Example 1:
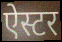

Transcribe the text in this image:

ऐस्टर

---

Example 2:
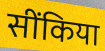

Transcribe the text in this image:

सींकिया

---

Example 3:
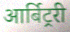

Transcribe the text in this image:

आर्बिट्ररी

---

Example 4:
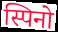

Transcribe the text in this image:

स्पिनो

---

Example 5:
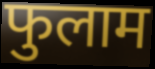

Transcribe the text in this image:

फुलाम